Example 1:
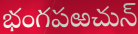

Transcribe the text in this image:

భంగపఱచున్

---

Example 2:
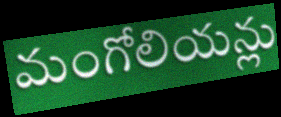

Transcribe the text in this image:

మంగోలియన్లు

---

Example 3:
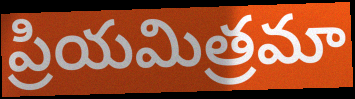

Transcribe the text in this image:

ప్రియమిత్రమా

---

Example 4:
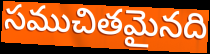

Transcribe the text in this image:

సముచితమైనది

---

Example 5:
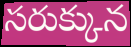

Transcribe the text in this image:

సరుక్కున